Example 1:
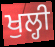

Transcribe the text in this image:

ਖੁਲ੍ਹੀ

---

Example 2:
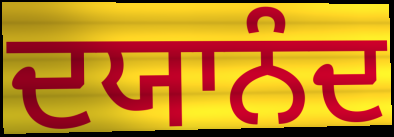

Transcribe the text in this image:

ਦਯਾਨੰਦ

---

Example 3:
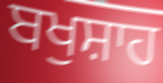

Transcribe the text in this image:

ਬਖੁਸ਼ਾਹ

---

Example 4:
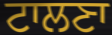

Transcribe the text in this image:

ਟਾਲਣਾ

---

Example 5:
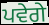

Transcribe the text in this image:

ਪਵੇਗੇ